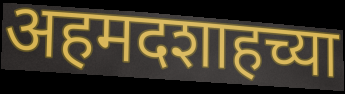
अहमदशाहच्या